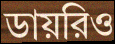
ডায়রিও